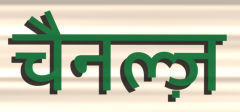
चैनल्ज़